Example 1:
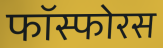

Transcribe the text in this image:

फॉस्फोरस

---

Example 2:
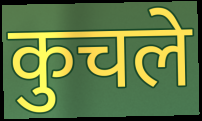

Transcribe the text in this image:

कुचले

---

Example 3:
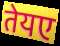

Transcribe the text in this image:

तेयए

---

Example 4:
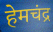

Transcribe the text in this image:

हेमचंद्र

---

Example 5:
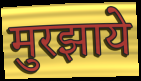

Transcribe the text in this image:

मुरझाये